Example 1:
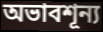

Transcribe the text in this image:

অভাবশূন্য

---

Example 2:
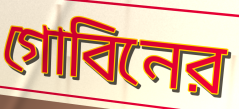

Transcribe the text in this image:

গোবিনের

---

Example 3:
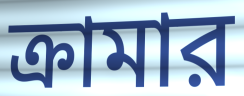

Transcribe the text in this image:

ক্রামার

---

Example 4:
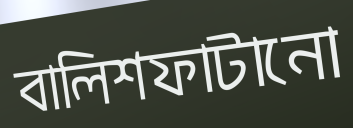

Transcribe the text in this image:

বালিশফাটানো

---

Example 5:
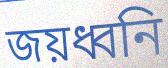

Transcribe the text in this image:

জয়ধ্বনি